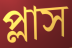
প্লাস